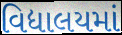
વિદ્યાલયમાં